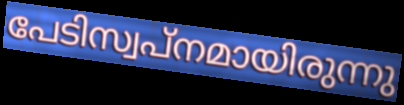
പേടിസ്വപ്നമായിരുന്നു